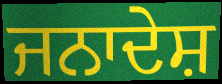
ਜਨਾਦੇਸ਼